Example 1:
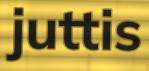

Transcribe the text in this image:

juttis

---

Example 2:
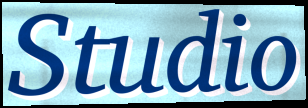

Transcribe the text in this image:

Studio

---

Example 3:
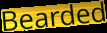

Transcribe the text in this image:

Bearded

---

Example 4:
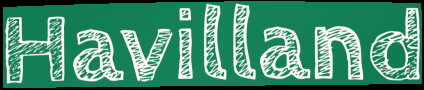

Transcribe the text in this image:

Havilland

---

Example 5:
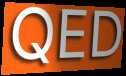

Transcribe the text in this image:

QED